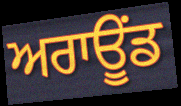
ਅਰਾਊਂਡ